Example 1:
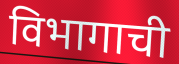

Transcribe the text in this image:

विभागाची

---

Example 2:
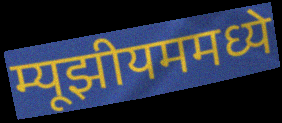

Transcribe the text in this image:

म्यूझीयममध्ये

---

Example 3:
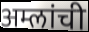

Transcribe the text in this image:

अम्‍लांची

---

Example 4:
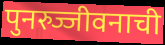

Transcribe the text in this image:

पुनरुज्जीवनाची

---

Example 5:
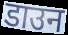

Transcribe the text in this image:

डाउन